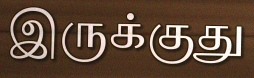
இருக்குது